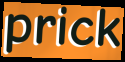
prick